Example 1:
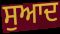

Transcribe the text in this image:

ਸੁਆਦ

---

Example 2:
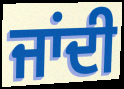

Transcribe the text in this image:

ਜਾਂਦੀ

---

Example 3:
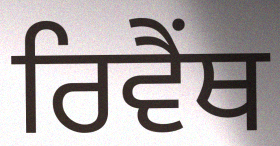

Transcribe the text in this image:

ਰਿਵੈਂਥ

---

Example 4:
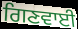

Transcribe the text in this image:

ਗਿਣਵਾਈ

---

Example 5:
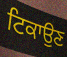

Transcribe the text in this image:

ਟਿਕਾਉਣ